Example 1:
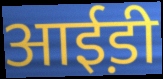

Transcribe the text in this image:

आई़डी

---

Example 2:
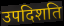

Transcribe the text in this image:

उपदिशति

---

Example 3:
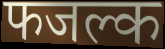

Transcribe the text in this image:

फजल्क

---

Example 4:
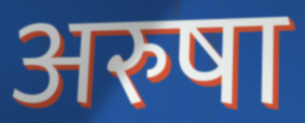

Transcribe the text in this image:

अरुषा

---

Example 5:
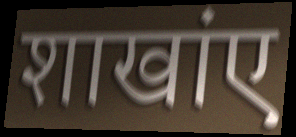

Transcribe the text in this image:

शाखांए